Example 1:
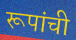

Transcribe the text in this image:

रूपांची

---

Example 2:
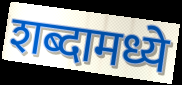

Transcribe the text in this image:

शब्दामध्ये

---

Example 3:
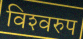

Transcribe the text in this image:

विश्वरुप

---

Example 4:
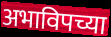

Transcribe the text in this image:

अभाविपच्या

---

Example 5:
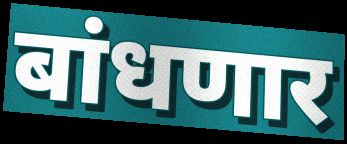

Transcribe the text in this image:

बांधणार